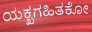
ಯಕ್ಖಗಹಿತಕೋ